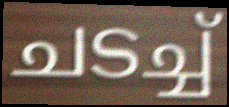
ചടച്ച്